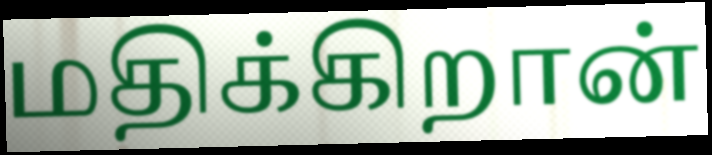
மதிக்கிறான்